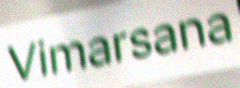
Vimarsana